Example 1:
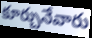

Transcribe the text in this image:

కూర్చునేవారు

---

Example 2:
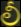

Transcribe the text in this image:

లీ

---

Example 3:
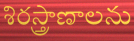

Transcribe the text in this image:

శిరస్త్రాణాలను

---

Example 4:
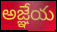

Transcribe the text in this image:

అజ్ఞేయ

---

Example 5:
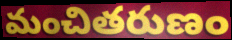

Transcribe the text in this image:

మంచితరుణం